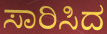
ಸಾರಿಸಿದ